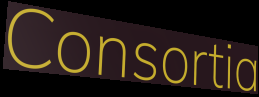
Consortia